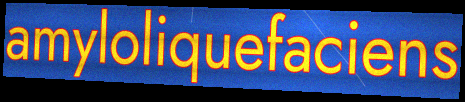
amyloliquefaciens